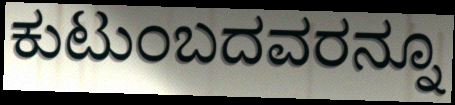
ಕುಟುಂಬದವರನ್ನೂ